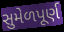
સુમેળપૂર્ણ